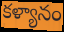
కళ్యానం